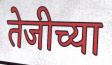
तेजीच्या